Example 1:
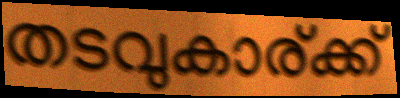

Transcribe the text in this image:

തടവുകാര്ക്ക്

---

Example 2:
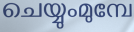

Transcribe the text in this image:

ചെയ്യുംമുമ്പേ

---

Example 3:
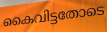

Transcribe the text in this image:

കൈവിട്ടതോടെ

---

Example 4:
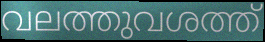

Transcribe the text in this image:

വലത്തുവശത്ത്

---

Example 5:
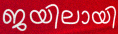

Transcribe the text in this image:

ജയിലായി